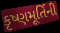
કૃષ્ણમૂર્તિની